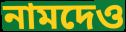
নামদেও